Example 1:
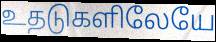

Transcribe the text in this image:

உதடுகளிலேயே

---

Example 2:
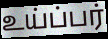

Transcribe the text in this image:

உய்ப்பர்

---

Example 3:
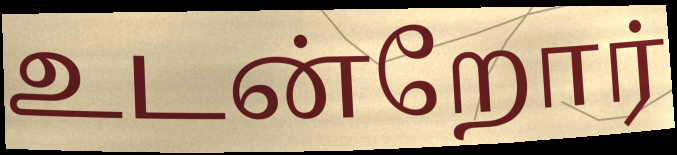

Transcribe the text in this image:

உடன்றோர்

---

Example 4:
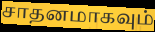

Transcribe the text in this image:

சாதனமாகவும்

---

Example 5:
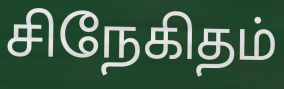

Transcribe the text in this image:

சிநேகிதம்